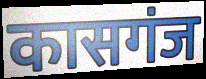
कासगंज